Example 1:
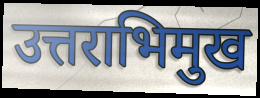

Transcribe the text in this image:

उत्तराभिमुख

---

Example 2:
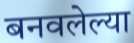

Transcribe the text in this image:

बनवलेल्या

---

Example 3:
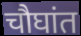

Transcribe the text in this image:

चौघांत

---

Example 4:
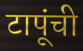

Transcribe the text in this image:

टापूंची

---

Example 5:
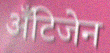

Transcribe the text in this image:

अँटिजेन